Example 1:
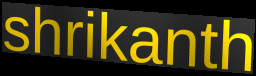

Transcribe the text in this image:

shrikanth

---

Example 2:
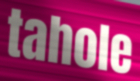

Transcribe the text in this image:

tahole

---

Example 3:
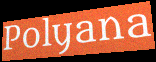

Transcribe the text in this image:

Polyana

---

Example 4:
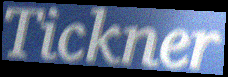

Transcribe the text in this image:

Tickner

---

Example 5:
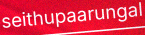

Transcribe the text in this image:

seithupaarungal